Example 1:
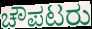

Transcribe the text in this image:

ಚೌಪಟರು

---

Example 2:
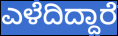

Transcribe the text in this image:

ಎಳೆದಿದ್ದಾರೆ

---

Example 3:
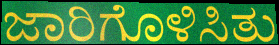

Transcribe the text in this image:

ಜಾರಿಗೊಳಿಸಿತು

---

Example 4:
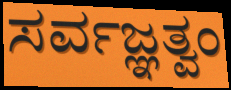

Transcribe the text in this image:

ಸರ್ವಜ್ಞತ್ವಂ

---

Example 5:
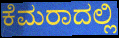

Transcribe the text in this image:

ಕೆಮರಾದಲ್ಲಿ